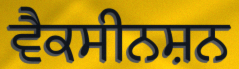
ਵੈਕਸੀਨਸ਼ਨ